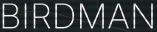
BIRDMAN